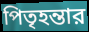
পিতৃহন্তার